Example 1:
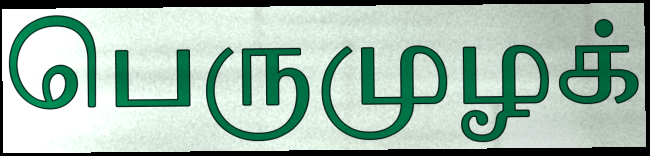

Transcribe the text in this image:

பெருமுழக்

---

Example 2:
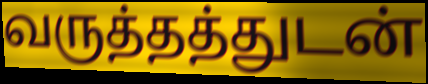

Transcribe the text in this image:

வருத்தத்துடன்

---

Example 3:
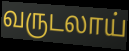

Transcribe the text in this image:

வருடலாய்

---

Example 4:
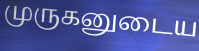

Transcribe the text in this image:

முருகனுடைய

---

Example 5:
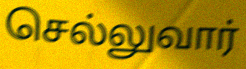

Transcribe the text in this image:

செல்லுவார்